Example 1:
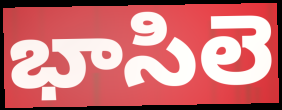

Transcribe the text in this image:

భాసిలె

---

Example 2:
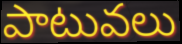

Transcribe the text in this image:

పాటువలు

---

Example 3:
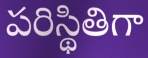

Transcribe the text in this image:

పరిస్థితిగా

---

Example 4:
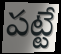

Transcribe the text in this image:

పట్టే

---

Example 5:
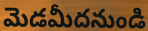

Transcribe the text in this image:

మెడమీదనుండి